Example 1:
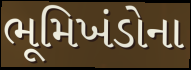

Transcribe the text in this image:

ભૂમિખંડોના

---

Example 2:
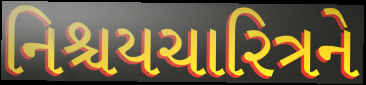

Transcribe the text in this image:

નિશ્ચયચારિત્રને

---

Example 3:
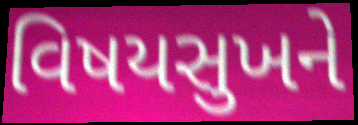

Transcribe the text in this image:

વિષયસુખને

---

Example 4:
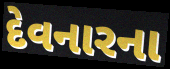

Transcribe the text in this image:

દેવનારના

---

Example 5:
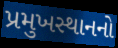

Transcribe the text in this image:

પ્રમુખસ્થાનનો